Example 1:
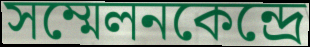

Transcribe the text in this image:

সম্মেলনকেন্দ্রে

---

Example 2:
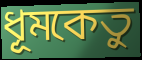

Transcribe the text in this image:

ধূমকেতু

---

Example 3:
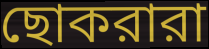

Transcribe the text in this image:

ছোকরারা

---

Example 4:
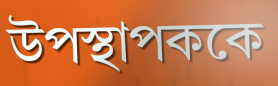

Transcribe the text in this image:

উপস্থাপককে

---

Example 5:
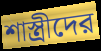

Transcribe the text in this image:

শাস্ত্রীদের